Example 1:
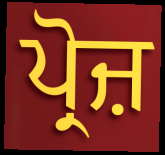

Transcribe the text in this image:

ਪ੍ਰੋਜ਼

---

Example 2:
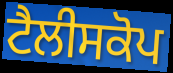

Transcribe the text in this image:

ਟੈਲੀਸਕੋਪ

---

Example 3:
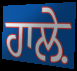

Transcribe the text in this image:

ਹਾਲ਼ੇ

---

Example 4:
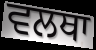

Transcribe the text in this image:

ਵਲਥਾ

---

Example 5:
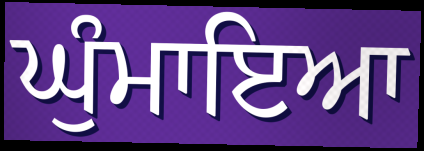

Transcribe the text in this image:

ਘੁੰਮਾਇਆ